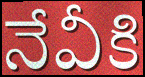
నేవీకి